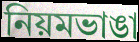
নিয়মভাঙা